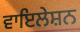
ਵਾਇਲੇਸ਼ਨ